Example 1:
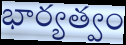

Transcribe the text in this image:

భార్యత్వం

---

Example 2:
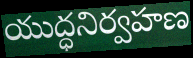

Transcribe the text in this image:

యుద్ధనిర్వహణ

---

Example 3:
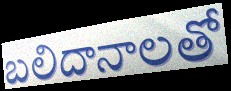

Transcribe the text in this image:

బలిదానాలతో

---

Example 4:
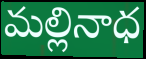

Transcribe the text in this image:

మల్లినాధ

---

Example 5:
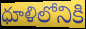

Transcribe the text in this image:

ధూళిలోనికి